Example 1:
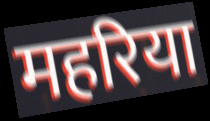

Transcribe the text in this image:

महरिया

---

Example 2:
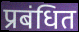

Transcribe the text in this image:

प्रबंधित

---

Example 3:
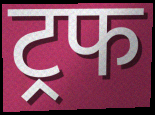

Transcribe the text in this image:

ट्रफ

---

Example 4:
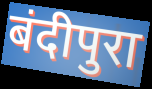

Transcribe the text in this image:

बंदीपुरा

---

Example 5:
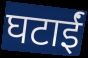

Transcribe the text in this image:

घटाईं